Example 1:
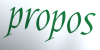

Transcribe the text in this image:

propos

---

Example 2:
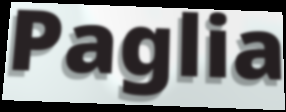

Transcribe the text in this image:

Paglia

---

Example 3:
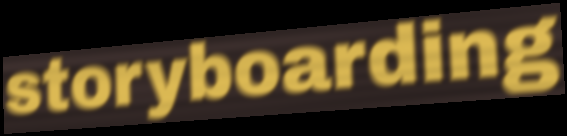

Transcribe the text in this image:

storyboarding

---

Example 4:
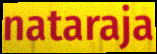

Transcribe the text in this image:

nataraja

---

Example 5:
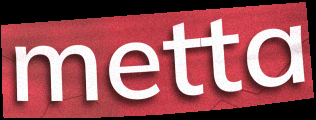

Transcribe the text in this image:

metta